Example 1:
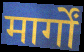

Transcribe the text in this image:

मार्गों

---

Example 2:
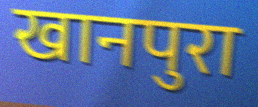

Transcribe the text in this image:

खानपुरा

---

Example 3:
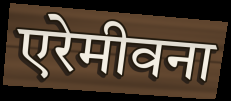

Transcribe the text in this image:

एरेमीवना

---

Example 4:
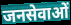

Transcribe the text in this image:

जनसेवाओं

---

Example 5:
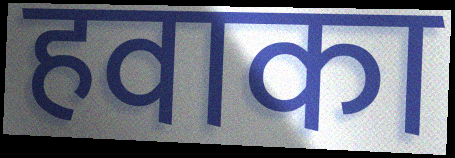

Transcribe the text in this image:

हवाका